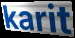
karit